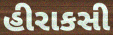
હીરાકસી